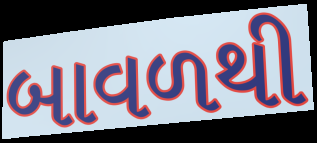
બાવળથી